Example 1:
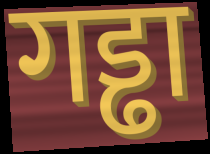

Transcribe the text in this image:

गड्ढा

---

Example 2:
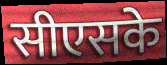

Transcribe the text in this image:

सीएसके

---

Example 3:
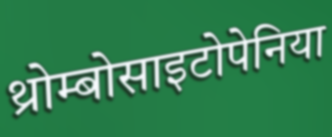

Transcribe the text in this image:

थ्रोम्बोसाइटोपेनिया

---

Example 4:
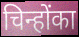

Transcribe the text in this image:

चिन्होंका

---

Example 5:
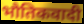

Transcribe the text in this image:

भौतिकवादी